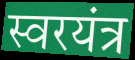
स्वरयंत्र